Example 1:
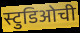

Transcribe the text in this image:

स्टुडिओची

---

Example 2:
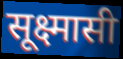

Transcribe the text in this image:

सूक्ष्मासी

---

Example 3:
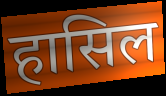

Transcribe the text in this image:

हासिल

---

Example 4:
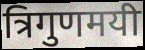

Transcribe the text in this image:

त्रिगुणमयी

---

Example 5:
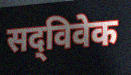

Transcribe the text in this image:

सद्‌विवेक